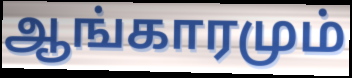
ஆங்காரமும்